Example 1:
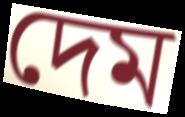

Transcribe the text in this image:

দেম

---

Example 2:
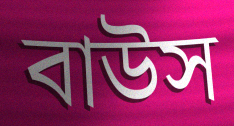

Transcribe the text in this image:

বাউস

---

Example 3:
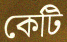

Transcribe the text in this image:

কেটি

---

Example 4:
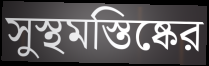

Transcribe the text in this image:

সুস্থমস্তিষ্কের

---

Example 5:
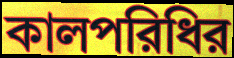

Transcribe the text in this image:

কালপরিধির